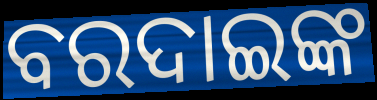
ବରଦାଇଙ୍କ